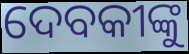
ଦେବକୀଙ୍କୁ